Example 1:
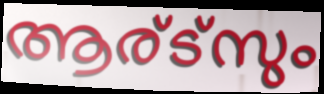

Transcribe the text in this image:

ആര്ട്സും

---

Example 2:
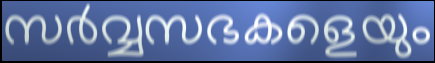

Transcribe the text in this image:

സർവ്വസഭകളെയും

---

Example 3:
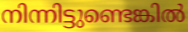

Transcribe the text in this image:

നിന്നിട്ടുണ്ടെങ്കിൽ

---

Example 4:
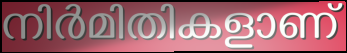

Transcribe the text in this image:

നിർമിതികളാണ്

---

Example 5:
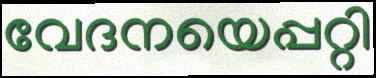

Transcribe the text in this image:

വേദനയെപ്പറ്റി